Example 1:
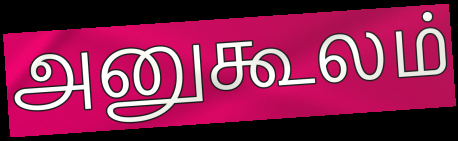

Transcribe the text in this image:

அனுகூலம்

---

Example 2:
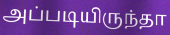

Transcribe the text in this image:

அப்படியிருந்தா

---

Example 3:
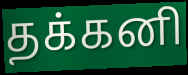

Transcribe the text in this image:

தக்கனி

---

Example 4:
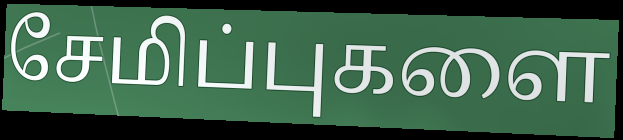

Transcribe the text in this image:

சேமிப்புகளை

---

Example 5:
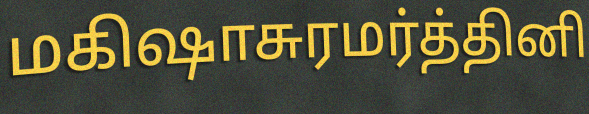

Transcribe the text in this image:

மகிஷாசுரமர்த்தினி